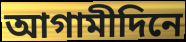
আগামীদিনে